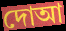
দোআ